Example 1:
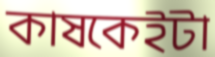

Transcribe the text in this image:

কাষকেইটা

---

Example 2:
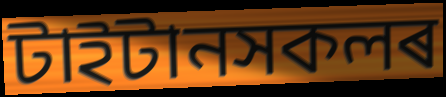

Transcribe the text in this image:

টাইটানসকলৰ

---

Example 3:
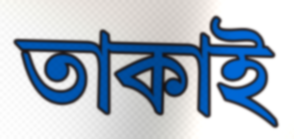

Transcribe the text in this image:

তাকাই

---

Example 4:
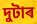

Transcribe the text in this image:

দুটাৰ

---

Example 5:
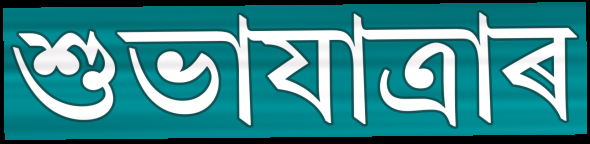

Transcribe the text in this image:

শুভাযাত্ৰাৰ